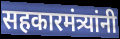
सहकारमंत्र्यांनी